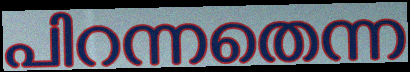
പിറന്നതെന്ന